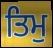
ਤਿਮੁ